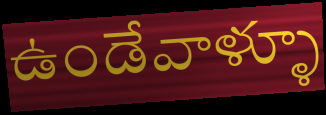
ఉండేవాళ్ళూ